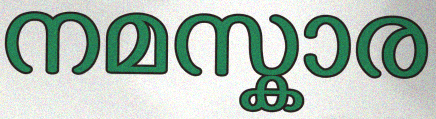
നമസ്കാര